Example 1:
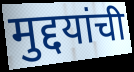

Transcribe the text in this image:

मुद्दयांची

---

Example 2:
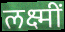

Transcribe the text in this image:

लक्ष्मीं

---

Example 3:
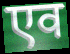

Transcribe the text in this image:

एव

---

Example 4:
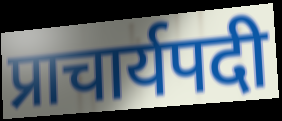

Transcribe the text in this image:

प्राचार्यपदी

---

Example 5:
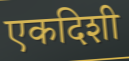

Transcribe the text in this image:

एकदिशी